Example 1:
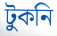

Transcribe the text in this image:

টুকনি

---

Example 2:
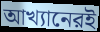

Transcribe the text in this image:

আখ্যানেরই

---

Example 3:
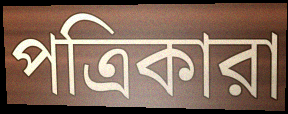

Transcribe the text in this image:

পত্রিকারা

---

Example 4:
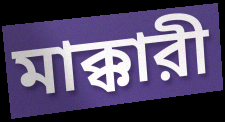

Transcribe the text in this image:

মাক্কারী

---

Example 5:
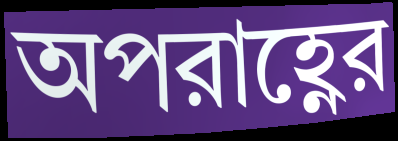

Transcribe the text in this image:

অপরাহ্ণের